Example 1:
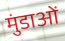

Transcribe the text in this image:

मुंडाओं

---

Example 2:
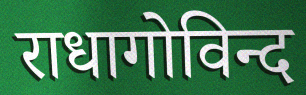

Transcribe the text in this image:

राधागोविन्द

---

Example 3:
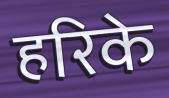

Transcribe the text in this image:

हरिके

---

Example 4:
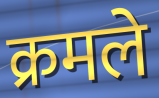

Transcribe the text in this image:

क्रमले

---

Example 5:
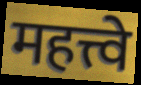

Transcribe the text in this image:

महत्त्वे